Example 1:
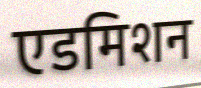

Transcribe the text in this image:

एडमिशन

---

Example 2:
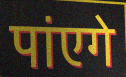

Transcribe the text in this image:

पांएगे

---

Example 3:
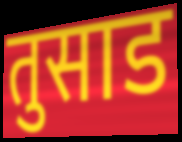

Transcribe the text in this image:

तुसाड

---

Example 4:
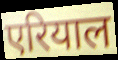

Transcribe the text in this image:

एरियाल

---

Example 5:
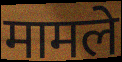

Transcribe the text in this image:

मामले